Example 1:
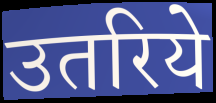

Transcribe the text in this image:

उतरिये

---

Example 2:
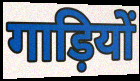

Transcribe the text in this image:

गाड़ियों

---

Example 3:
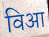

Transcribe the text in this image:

विआ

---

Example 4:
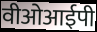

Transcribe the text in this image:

वीओआईपी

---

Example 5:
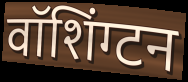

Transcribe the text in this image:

वॉशिंग्टन